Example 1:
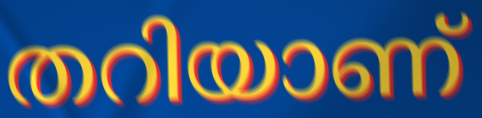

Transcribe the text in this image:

തറിയാണ്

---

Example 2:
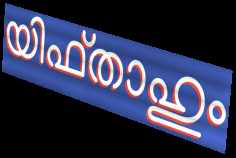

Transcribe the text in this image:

യിഫ്താഹും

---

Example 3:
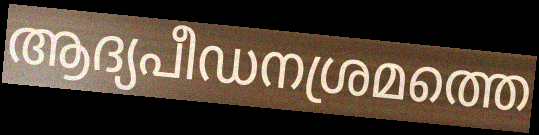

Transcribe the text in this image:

ആദ്യപീഡനശ്രമത്തെ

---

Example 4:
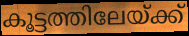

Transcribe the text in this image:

കൂട്ടത്തിലേയ്ക്ക്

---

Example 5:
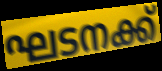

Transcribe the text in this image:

ഘടനക്ക്